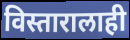
विस्तारालाही